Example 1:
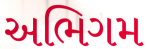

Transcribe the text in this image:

અભિગમ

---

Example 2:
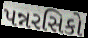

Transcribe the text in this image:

પન્નરસિકો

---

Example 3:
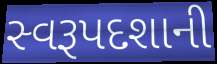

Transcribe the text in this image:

સ્વરૂપદશાની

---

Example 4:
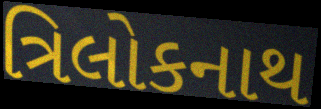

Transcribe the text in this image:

ત્રિલોકનાથ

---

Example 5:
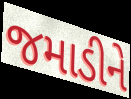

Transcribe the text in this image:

જમાડીને